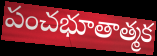
పంచభూతాత్మక